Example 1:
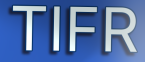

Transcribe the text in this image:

TIFR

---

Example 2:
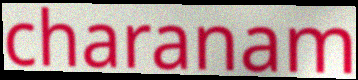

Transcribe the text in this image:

charanam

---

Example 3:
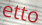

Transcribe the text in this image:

etto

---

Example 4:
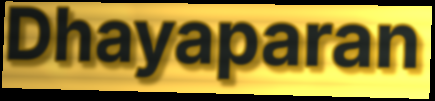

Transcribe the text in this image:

Dhayaparan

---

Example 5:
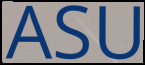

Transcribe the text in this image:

ASU